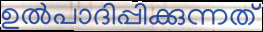
ഉൽപാദിപ്പിക്കുന്നത്